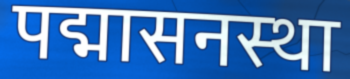
पद्मासनस्था